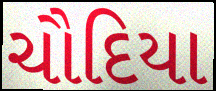
ચૌદિયા